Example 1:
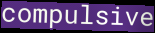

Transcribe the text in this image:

compulsive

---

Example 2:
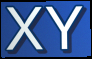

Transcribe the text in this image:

XY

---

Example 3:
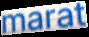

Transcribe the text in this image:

marat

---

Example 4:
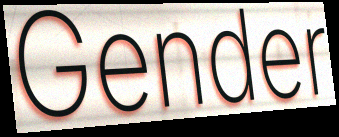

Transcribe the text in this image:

Gender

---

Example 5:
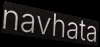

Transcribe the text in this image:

navhata